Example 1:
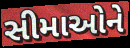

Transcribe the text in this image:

સીમાઓને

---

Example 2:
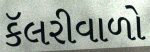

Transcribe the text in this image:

કૅલરીવાળો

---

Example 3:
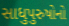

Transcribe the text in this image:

સાધુપુરુષોનો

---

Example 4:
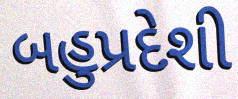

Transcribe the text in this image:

બહુપ્રદેશી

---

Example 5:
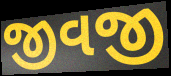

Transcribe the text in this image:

જીવજી